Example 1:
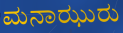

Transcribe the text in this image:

ಮನಾಝುರು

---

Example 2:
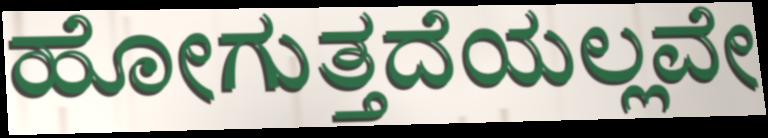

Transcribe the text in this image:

ಹೋಗುತ್ತದೆಯಲ್ಲವೇ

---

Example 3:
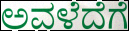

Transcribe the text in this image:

ಅವಳೆದೆಗೆ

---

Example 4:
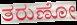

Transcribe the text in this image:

ತರುಣೋ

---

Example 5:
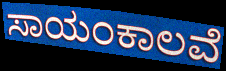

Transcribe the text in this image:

ಸಾಯಂಕಾಲವೆ